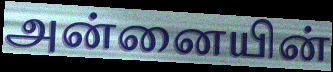
அன்னையின்